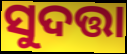
ସୁଦତ୍ତା